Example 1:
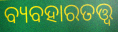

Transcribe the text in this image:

ବ୍ୟବହାରତତ୍ତ୍ବ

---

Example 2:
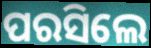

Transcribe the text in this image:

ପରସିଲେ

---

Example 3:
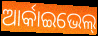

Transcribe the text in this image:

ଆର୍କାଇଭେଲ୍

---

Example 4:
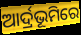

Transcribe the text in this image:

ଆର୍ଦ୍ରଭୂମିରେ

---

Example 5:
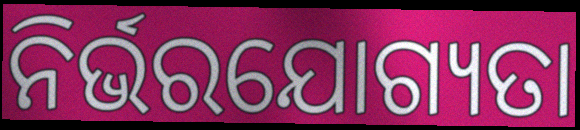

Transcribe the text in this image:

ନିର୍ଭରଯୋଗ୍ୟତା